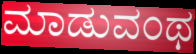
ಮಾಡುವಂಥ